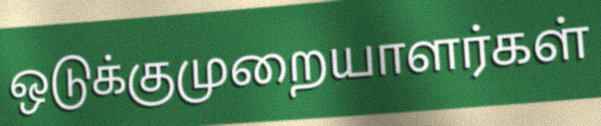
ஒடுக்குமுறையாளர்கள்